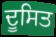
ਦੂਸਿਤ